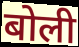
बोली